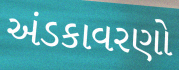
અંડકાવરણો